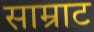
साम्राट